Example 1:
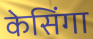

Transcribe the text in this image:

केसिंगा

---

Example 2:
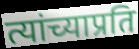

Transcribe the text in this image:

त्यांच्याप्रति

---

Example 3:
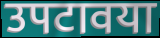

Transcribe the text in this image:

उपटावया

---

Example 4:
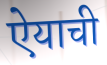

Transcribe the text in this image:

ऐयाची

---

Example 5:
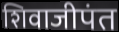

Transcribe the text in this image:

शिवाजीपंत